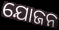
ଯୋଜନ